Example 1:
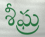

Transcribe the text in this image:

శీఘ్ర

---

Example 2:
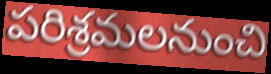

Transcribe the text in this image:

పరిశ్రమలనుంచి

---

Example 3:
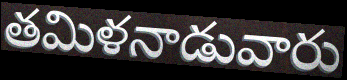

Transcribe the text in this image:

తమిళనాడువారు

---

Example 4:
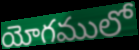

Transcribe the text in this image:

యోగములో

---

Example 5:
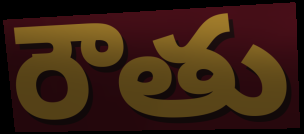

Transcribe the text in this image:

రౌతు